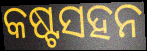
କଷ୍ଟସହନ